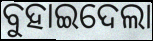
ବୁହାଇଦେଲା